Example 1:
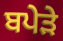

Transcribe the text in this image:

ਬਪੇੜੇ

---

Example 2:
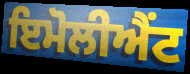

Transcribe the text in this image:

ਇਮੋਲੀਐਂਟ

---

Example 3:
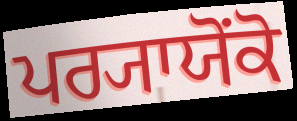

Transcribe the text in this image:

ਪਰ੍ਯਾਯੋਂਕੋ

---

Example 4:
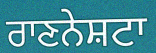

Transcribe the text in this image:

ਰਾਣਨੇਸ਼ਟਾ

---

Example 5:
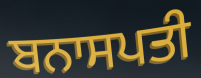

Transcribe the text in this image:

ਬਨਾਸਪਤੀ